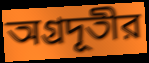
অগ্রদূতীর